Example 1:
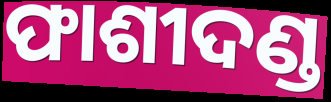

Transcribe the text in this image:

ଫାଶୀଦଣ୍ଡ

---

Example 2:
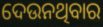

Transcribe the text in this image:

ଦେଉନଥିବାର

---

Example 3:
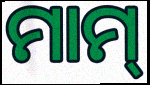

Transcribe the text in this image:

ମାମ୍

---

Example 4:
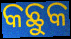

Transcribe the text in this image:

କଛୁକ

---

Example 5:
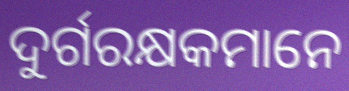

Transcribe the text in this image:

ଦୁର୍ଗରକ୍ଷକମାନେ